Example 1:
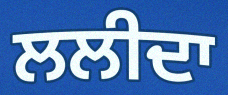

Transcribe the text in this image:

ਲਲੀਦਾ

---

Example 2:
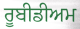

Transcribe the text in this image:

ਰੂਬੀਡੀਅਮ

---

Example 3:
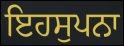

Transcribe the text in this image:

ਇਹਸੁਪਨਾ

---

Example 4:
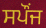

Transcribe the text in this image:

ਸਪੌਂਜ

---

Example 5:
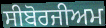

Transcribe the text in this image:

ਸੀਬੋਰਜੀਅਮ